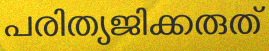
പരിത്യജിക്കരുത്